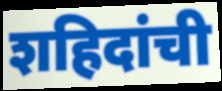
शहिदांची